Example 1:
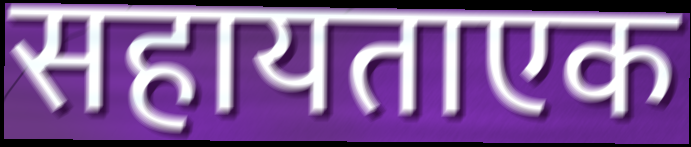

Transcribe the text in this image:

सहायताएक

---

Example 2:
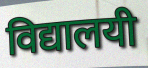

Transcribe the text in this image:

विद्यालयी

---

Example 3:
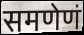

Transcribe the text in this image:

समणेणं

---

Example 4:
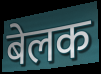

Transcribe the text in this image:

बेलक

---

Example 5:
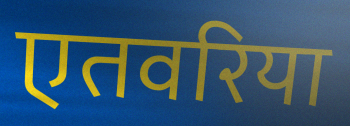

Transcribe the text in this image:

एतवरिया